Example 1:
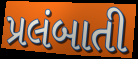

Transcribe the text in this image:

પ્રલંબાતી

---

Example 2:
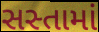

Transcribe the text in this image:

સસ્તામાં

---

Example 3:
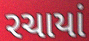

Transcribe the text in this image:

રચાયાં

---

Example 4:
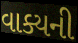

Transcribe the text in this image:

વાક્યની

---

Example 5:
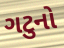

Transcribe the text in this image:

ગટુનો